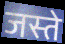
जस्ते